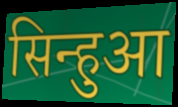
सिन्हुआ